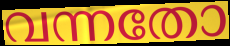
വന്നതോ